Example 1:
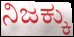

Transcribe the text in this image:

ನಿಜಕ್ಕು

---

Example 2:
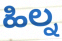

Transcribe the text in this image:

ಹಿಲ್ನ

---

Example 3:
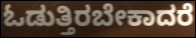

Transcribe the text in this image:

ಓಡುತ್ತಿರಬೇಕಾದರೆ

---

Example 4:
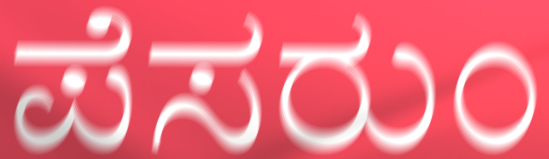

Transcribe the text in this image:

ಪೆಸರುಂ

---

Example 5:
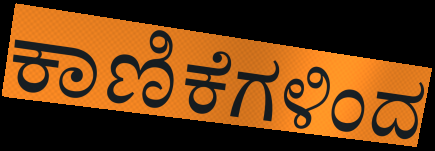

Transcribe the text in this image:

ಕಾಣಿಕೆಗಳಿಂದ